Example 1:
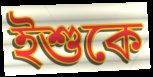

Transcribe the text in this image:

ইশুকে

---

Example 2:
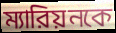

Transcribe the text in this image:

ম্যারিয়নকে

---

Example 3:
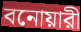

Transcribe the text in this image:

বনোয়ারী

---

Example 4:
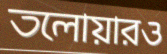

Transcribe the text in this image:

তলোয়ারও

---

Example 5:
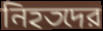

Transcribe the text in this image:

নিহতদের